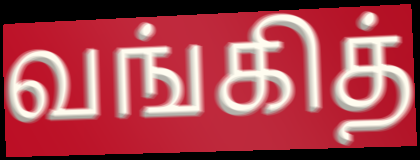
வங்கித்